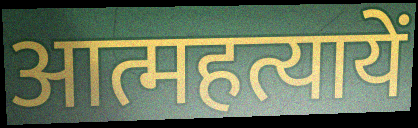
आत्महत्यायें